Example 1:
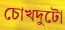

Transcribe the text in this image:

চোখদুটো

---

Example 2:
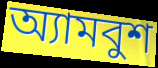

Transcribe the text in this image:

অ্যামবুশ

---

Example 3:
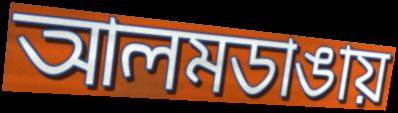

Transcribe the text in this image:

আলমডাঙায়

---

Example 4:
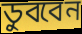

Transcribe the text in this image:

ডুববেন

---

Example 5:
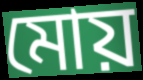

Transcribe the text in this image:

মোয়